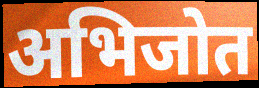
अभिजोत